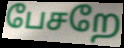
பேசறே